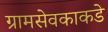
ग्रामसेवकाकडे